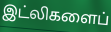
இட்லிகளைப்